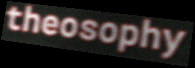
theosophy